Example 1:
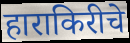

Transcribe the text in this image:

हाराकिरीचे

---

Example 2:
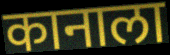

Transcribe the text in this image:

कानाला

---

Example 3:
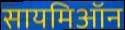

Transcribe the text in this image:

सायमिऑन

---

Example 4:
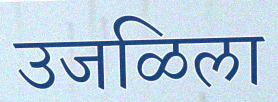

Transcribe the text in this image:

उजळिला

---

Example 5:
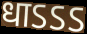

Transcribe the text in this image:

धाऽऽऽ